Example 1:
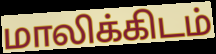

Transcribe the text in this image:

மாலிக்கிடம்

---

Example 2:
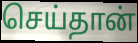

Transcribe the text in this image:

செய்தான்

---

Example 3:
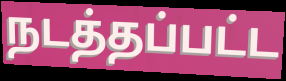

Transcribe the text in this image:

நடத்தப்பட்ட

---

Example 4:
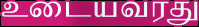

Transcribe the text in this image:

உடையவரது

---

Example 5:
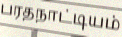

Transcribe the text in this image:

பரதநாட்டியம்